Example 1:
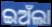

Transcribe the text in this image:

ଇଅଁଲା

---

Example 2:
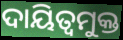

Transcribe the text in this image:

ଦାୟିତ୍ୱମୁକ୍ତ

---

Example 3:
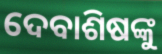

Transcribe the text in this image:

ଦେବାଶିଷଙ୍କୁ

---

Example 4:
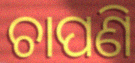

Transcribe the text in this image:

ଚାପଣି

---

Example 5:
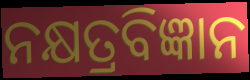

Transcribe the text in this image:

ନକ୍ଷତ୍ରବିଜ୍ଞାନ